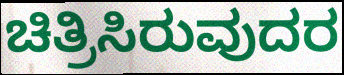
ಚಿತ್ರಿಸಿರುವುದರ